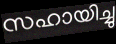
സഹായിച്ചു